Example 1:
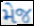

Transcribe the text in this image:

મેજ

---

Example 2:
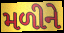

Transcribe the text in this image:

મળીને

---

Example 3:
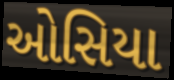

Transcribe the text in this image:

ઓસિયા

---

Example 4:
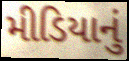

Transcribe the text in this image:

મીડિયાનું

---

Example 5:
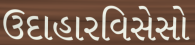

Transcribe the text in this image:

ઉદાહારવિસેસો